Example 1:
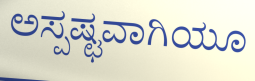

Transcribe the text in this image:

ಅಸ್ಪಷ್ಟವಾಗಿಯೂ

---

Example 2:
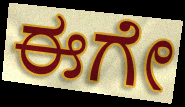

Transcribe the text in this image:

ಈಗೇ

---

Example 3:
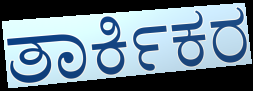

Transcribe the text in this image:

ತಾರ್ಕಿಕರ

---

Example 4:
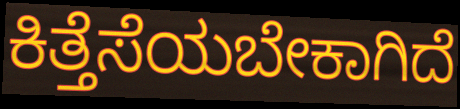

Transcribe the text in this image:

ಕಿತ್ತೆಸೆಯಬೇಕಾಗಿದೆ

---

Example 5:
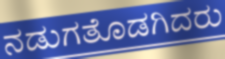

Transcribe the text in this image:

ನಡುಗತೊಡಗಿದರು